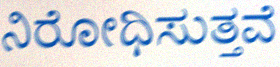
ನಿರೋಧಿಸುತ್ತವೆ